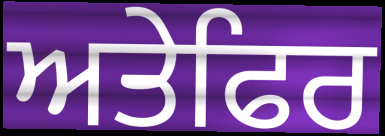
ਅਤੇਫਿਰ